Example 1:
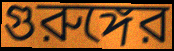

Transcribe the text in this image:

গুরুঙ্গের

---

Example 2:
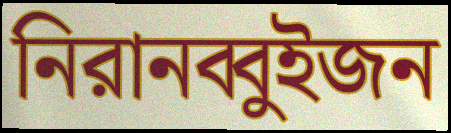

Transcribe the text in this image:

নিরানব্বুইজন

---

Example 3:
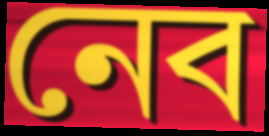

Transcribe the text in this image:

নেব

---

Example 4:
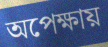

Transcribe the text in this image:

অপেক্ষায়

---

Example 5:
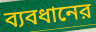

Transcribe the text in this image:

ব্যবধানের